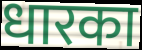
धारका